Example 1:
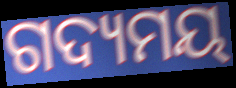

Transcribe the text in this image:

ଗଦ୍ୟମୟ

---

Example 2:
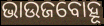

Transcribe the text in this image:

ଭାଉଜବୋହୂ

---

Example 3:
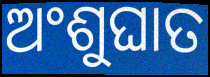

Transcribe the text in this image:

ଅଂଶୁଘାତ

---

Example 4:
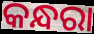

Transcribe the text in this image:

କନ୍ଧରା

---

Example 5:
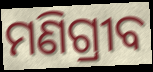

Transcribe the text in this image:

ମଣିଗ୍ରୀବ